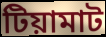
টিয়ামাট